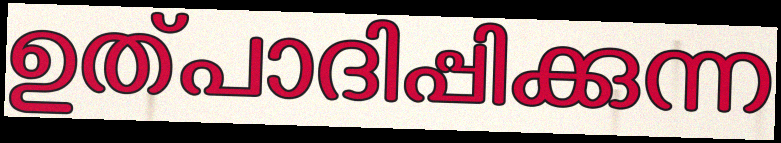
ഉത്പാദിപ്പിക്കുന്ന